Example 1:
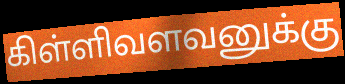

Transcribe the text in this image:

கிள்ளிவளவனுக்கு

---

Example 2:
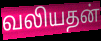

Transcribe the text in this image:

வலியதன்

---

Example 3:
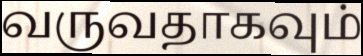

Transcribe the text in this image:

வருவதாகவும்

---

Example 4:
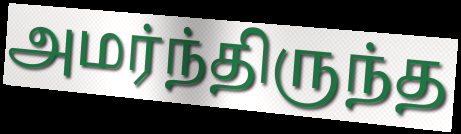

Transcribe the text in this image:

அமர்ந்திருந்த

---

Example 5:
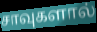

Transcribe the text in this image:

சாவுகளால்